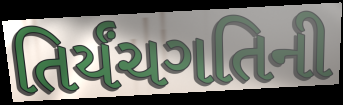
તિર્યંચગતિની